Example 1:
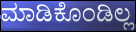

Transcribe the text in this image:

ಮಾಡಿಕೊಂಡಿಲ್ಲ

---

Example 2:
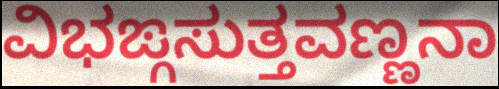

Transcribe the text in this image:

ವಿಭಙ್ಗಸುತ್ತವಣ್ಣನಾ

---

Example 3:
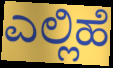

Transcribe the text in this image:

ಎಲ್ಲಿಹೆ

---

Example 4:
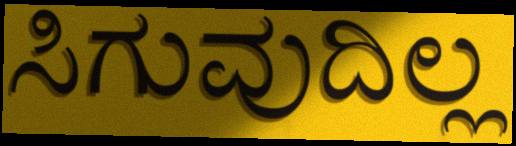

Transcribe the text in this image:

ಸಿಗುವುದಿಲ್ಲ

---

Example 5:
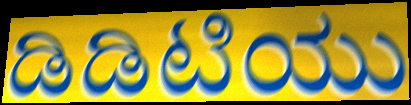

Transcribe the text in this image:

ಡಿಡಿಟಿಯು